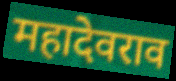
महादेवराव